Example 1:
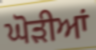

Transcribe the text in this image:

ਘੋੜੀਆਂ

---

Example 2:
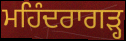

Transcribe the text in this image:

ਮਹਿੰਦਰਾਗੜ੍ਹ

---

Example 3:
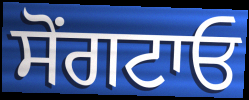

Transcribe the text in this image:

ਸੋਂਗਟਾਓ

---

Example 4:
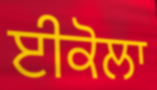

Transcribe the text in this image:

ਈਕੋਲਾ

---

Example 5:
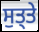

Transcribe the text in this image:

ਸੁਤ੍ਤੇ